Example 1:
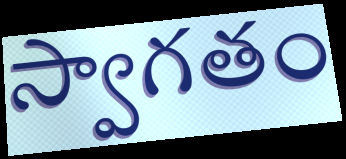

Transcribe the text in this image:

స్వాగతం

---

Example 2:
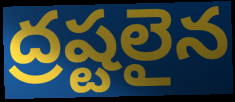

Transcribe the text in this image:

ద్రష్టలైన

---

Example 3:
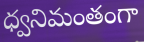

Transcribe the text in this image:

ధ్వనిమంతంగా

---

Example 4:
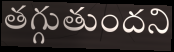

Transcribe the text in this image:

తగ్గుతుందని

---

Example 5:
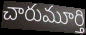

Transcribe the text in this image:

చారుమూర్తి